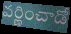
వర్ణించాడో